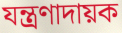
যন্ত্ৰণাদায়ক